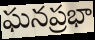
ఘనప్రభా